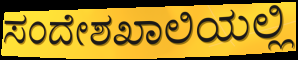
ಸಂದೇಶಖಾಲಿಯಲ್ಲಿ